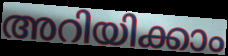
അറിയിക്കാം